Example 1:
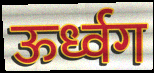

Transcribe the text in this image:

ऊर्ध्वग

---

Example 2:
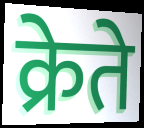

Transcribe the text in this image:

क्रेते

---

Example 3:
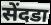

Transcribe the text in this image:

सेंदडा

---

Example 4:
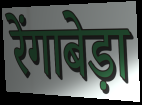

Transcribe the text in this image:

रेंगाबेड़ा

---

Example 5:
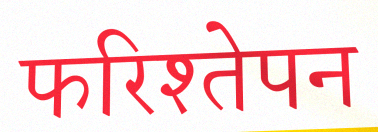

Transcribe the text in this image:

फरिश्तेपन